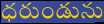
ధరుండును